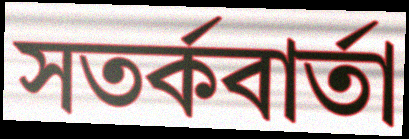
সতর্কবার্তা